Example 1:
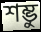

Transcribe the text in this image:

শম্ভু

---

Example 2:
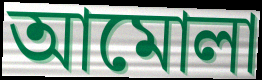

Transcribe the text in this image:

আমোলা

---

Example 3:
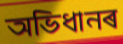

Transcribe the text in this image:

অভিধানৰ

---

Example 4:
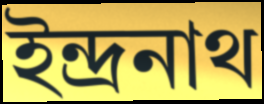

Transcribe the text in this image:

ইন্দ্ৰনাথ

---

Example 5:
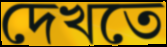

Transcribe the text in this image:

দেখতে